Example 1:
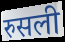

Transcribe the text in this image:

रुसली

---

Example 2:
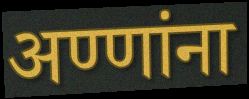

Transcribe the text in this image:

अण्णांना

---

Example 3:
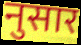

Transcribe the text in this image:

नुसार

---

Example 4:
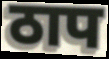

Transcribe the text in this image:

ठाप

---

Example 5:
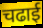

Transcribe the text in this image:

चढाई